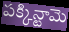
పక్కిన్టామె